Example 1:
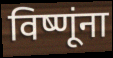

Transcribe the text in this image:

विष्णूंना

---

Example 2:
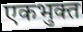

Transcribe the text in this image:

एकभुक्त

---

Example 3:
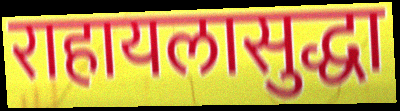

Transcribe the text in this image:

राहायलासुद्धा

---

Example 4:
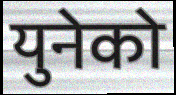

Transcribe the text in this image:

युनेको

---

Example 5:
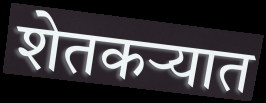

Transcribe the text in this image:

शेतकऱ्यात